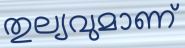
തുല്യവുമാണ്